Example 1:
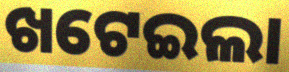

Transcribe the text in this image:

ଖଟେଇଲା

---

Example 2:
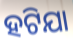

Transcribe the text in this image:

ହଟିଯା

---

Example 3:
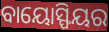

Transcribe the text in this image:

ବାୟୋସ୍ଫିୟର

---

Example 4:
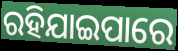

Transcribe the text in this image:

ରହିଯାଇପାରେ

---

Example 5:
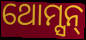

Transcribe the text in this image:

ଥୋମ୍ସନ୍